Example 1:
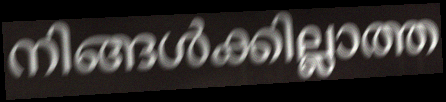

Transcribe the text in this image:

നിങ്ങൾക്കില്ലാത്ത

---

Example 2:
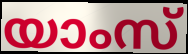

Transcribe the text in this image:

യാംസ്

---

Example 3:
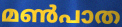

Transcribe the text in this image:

മൺപാത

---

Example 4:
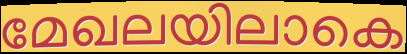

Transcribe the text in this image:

മേഖലയിലാകെ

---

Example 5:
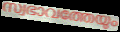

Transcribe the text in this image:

സ്വഭാവത്തേയും